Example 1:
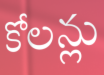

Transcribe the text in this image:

కోలన్లు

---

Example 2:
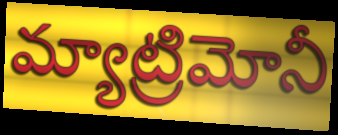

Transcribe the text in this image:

మ్యాట్రిమోనీ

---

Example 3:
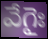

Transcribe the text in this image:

వేగైః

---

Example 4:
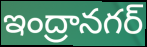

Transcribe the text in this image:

ఇంద్రానగర్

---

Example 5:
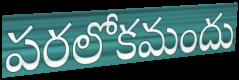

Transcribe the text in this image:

పరలోకమందు